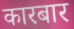
कारबार